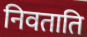
निवताति